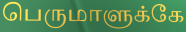
பெருமாளுக்கே